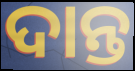
ଦାନ୍ତ